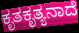
ಕೃತಕೃತ್ಯನಾದೆ